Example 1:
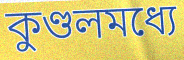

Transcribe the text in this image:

কুণ্ডলমধ্যে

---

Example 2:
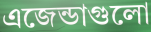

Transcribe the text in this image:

এজেন্ডাগুলো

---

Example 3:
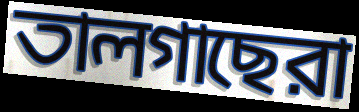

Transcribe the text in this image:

তালগাছেরা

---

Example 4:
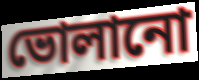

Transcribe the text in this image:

ভোলানো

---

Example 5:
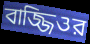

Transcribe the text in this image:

বাজ্জিওর